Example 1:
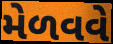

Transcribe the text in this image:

મેળવવે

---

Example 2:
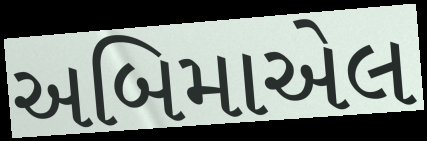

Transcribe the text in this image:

અબિમાએલ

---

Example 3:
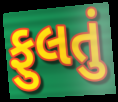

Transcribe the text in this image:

ફુલતું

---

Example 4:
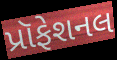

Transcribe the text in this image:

પ્રૉફેશનલ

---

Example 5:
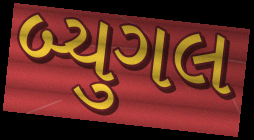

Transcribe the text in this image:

બ્યુગલ